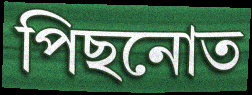
পিছনোত